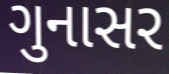
ગુનાસર